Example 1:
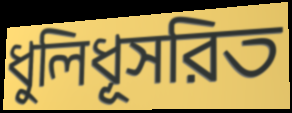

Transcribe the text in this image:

ধুলিধূসরিত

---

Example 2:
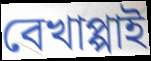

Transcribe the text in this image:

বেখাপ্পাই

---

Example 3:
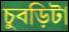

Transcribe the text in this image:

চুবড়িটা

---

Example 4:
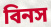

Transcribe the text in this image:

বিনস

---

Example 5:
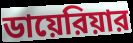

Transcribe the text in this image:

ডায়েরিয়ার